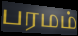
பரமம்